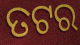
ତଟର